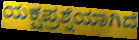
ಯಕ್ಷಪ್ರಶ್ನೆಯಾಗಿದೆ